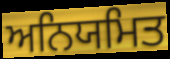
ਅਨਿਯਮਿਤ